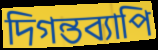
দিগন্তব্যাপি